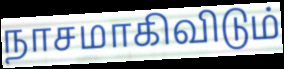
நாசமாகிவிடும்